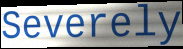
Severely